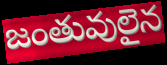
జంతువులైన